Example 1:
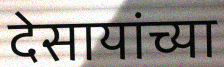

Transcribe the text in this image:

देसायांच्या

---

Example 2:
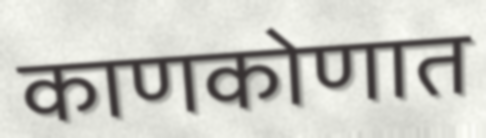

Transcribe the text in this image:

काणकोणात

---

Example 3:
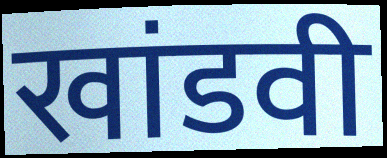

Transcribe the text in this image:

खांडवी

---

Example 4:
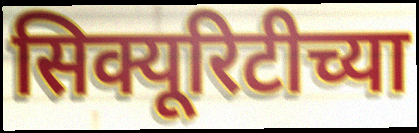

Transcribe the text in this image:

सिक्यूरिटीच्या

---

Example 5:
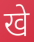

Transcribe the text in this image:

खे